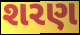
શરણ